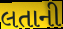
લતાની